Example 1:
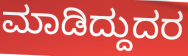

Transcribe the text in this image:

ಮಾಡಿದ್ದುದರ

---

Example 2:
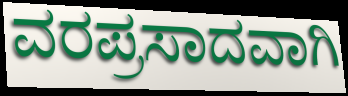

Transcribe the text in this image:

ವರಪ್ರಸಾದವಾಗಿ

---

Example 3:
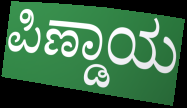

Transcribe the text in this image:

ಪಿಣ್ಡಾಯ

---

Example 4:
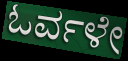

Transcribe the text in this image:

ಓರ್ವಳೇ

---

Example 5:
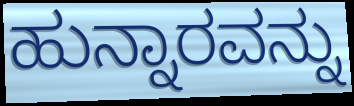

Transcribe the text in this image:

ಹುನ್ನಾರವನ್ನು